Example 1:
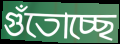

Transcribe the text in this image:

গুঁতোচ্ছে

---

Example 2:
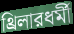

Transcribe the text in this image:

থ্রিলারধর্মী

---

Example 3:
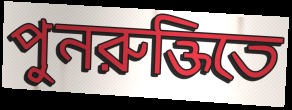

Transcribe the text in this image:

পুনরুক্তিতে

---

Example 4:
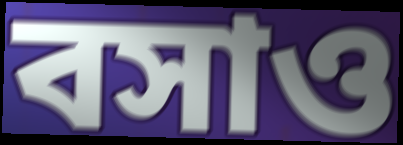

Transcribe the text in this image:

বসাও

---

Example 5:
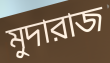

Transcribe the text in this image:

মুদারাজ